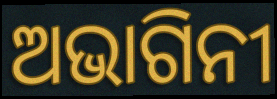
ଅଭାଗିନୀ